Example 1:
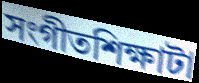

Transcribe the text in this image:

সংগীতশিক্ষাটা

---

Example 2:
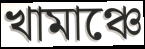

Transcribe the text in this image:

খামাঞ্চে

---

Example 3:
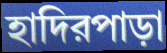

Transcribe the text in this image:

হাদিরপাড়া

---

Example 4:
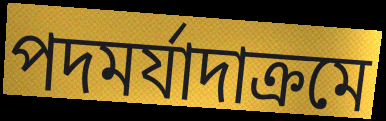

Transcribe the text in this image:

পদমর্যাদাক্রমে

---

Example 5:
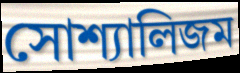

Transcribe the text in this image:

সোশ্যালিজম